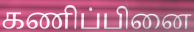
கணிப்பினை